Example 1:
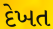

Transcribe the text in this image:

દેખત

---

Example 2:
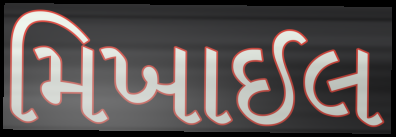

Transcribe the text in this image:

મિખાઈલ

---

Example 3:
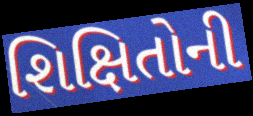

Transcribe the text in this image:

શિક્ષિતોની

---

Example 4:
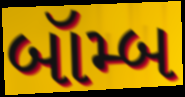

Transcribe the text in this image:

બૉમ્બ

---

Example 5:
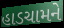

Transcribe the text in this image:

હાડચામને